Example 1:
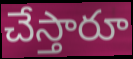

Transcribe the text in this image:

చేస్తారూ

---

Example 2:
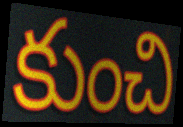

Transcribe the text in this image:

కుంచి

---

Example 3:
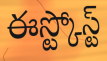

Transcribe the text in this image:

ఈస్ట్కోస్ట్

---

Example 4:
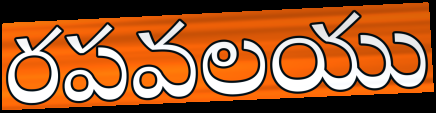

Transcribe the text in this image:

రపవలయు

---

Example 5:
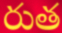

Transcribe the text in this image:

రుత